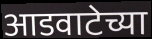
आडवाटेच्या